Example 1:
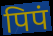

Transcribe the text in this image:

पिपं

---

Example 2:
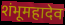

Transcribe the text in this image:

शंभूमहादेव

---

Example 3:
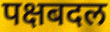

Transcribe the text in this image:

पक्षबदल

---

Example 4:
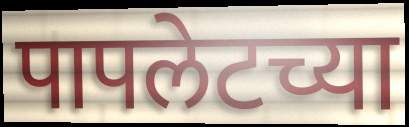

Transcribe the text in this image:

पापलेटच्या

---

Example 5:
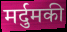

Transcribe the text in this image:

मर्दुमकी